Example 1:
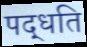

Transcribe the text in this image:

पद्धति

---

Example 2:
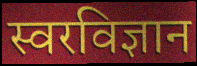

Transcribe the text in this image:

स्वरविज्ञान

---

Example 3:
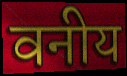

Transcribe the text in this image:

वनीय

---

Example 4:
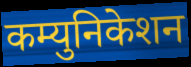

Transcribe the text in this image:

कम्युनिकेशन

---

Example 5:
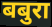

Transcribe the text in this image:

बबुरा